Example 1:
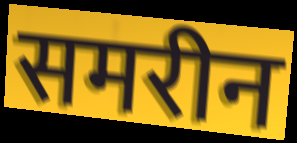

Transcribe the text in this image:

समरीन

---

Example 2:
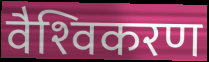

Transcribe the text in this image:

वैश्विकरण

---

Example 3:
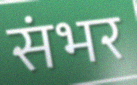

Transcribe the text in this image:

संभर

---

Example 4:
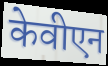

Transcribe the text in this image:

केवीएन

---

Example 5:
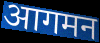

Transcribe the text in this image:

आगमन